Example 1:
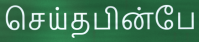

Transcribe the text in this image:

செய்தபின்பே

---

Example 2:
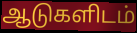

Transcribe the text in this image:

ஆடுகளிடம்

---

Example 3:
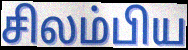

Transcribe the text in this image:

சிலம்பிய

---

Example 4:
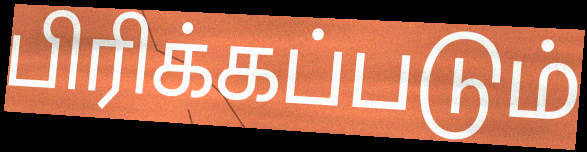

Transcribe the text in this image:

பிரிக்கப்படும்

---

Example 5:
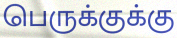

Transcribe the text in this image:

பெருக்குக்கு